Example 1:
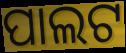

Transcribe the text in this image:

ପାଲଟ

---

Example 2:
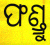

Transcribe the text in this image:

ଫଣ୍ଡ୍ରୁ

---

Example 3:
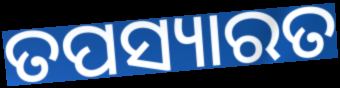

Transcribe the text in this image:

ତପସ୍ୟାରତ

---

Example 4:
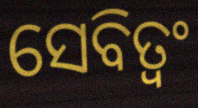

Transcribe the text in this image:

ସେବିତ୍ୱଂ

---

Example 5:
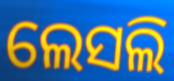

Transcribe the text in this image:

ଲେସଲି